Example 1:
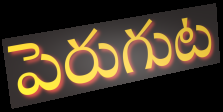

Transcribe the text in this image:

పెరుగుట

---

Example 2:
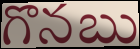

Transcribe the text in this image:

గొనబు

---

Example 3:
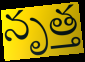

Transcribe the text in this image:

నృత్త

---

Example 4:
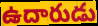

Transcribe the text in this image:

ఉదారుడు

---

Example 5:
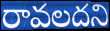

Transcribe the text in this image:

రావలదని